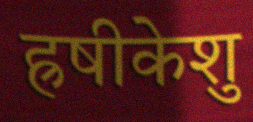
ह्रषीकेशु